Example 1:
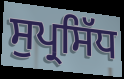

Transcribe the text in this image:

ਸੁਪ੍ਰਸਿੱਧ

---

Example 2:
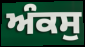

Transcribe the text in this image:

ਅੰਕਸੁ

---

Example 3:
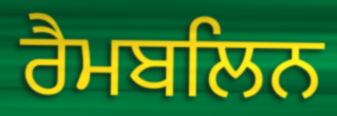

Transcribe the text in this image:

ਰੈਮਬਲਿਨ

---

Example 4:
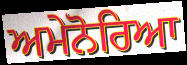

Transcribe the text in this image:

ਅਮੇਨੋਰਿਆ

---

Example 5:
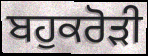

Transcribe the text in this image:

ਬਹੁਕਰੋਡ਼ੀ